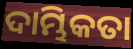
ଦାମ୍ଭିକତା